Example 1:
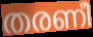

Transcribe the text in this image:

തരണീ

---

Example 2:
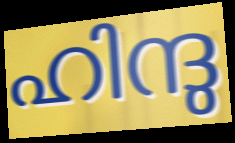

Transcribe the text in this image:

ഹിന്ദു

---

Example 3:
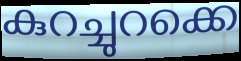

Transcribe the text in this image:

കുറച്ചുറക്കെ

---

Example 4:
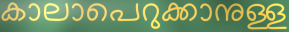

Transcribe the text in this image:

കാലാപെറുക്കാനുള്ള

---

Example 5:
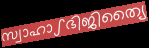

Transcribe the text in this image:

സ്വാഹാഽഭിജിത്യൈ